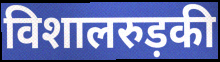
विशालरुड़की